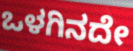
ಒಳಗಿನದೇ